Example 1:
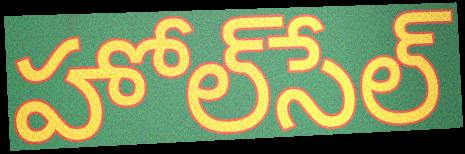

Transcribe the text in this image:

హోల్‌సేల్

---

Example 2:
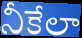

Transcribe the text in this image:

నీకేలా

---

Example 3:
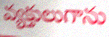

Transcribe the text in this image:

వ్యక్తులుగాను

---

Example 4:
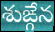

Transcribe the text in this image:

శుఙ్గేన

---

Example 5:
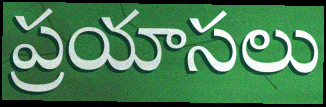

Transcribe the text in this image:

ప్రయాసలు